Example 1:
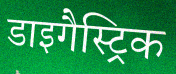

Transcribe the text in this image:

डाइगैस्ट्रिक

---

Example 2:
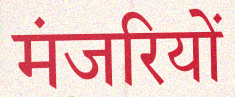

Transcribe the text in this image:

मंजरियों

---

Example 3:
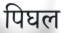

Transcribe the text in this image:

पिघल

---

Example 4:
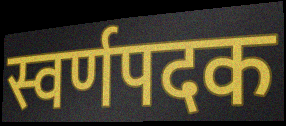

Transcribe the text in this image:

स्वर्णपदक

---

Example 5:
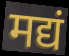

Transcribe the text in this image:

मद्यं